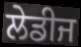
ਲੇਡੀਜ